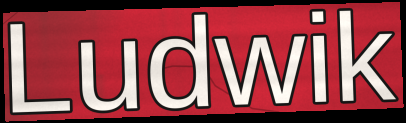
Ludwik